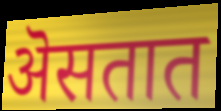
ऄसतात